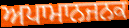
ਅਪਾਮਾਨਜਨਕ